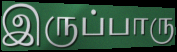
இருப்பாரு